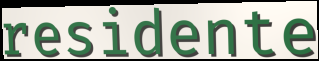
residente